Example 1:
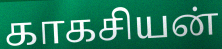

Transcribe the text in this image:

காகசியன்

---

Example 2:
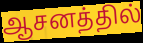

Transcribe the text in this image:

ஆசனத்தில்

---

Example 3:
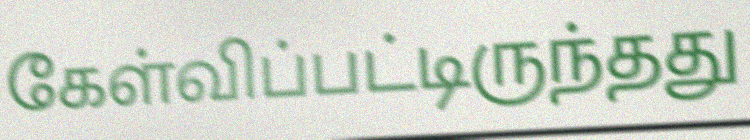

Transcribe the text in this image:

கேள்விப்பட்டிருந்தது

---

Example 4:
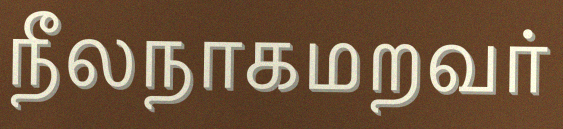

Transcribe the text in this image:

நீலநாகமறவர்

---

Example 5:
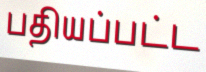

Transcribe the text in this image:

பதியப்பட்ட